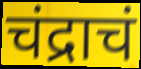
चंद्राचं